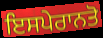
ਇਸਪੇਰਾਨਤੋ